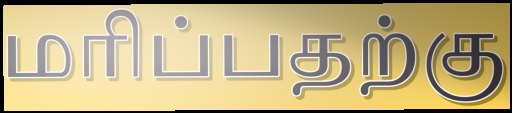
மரிப்பதற்கு